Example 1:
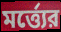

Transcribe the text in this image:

মর্ত্ত্যের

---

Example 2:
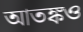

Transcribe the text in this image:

আতঙ্কও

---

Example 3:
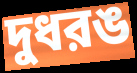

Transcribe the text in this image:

দুধরঙ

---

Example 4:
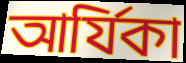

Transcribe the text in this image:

আর্যিকা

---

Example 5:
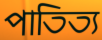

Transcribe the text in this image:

পাতিত্য